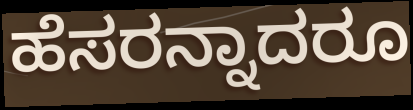
ಹೆಸರನ್ನಾದರೂ